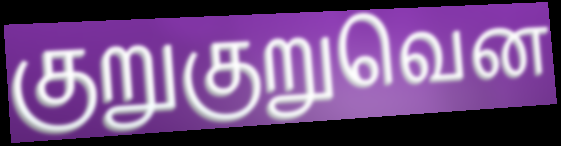
குறுகுறுவென